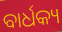
ବାର୍ଧକ୍ୟ